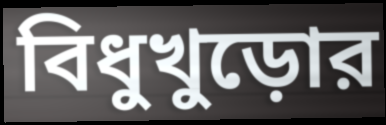
বিধুখুড়োর